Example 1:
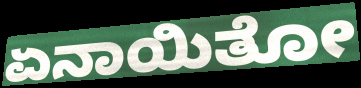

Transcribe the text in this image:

ಏನಾಯಿತೋ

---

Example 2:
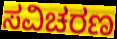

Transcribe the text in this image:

ಸವಿಚರಣ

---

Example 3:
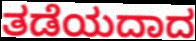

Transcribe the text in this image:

ತಡೆಯದಾದ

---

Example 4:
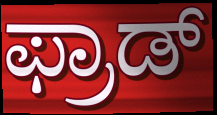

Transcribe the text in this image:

ಫ್ರಾಡ್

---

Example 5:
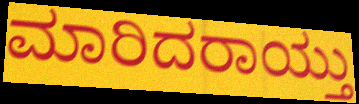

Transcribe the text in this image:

ಮಾರಿದರಾಯ್ತು